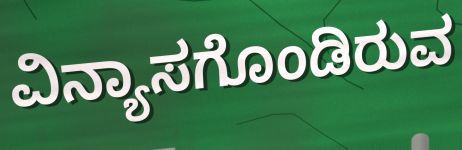
ವಿನ್ಯಾಸಗೊಂಡಿರುವ